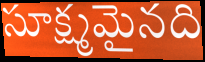
సూక్ష్మమైనది